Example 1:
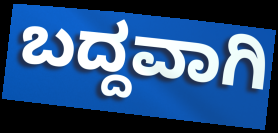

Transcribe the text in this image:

ಬದ್ದವಾಗಿ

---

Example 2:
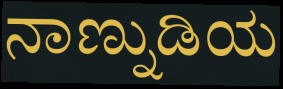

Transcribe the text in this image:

ನಾಣ್ನುಡಿಯ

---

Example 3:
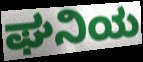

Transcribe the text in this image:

ಘನಿಯ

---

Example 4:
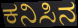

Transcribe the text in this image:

ಕನಿಸಿನ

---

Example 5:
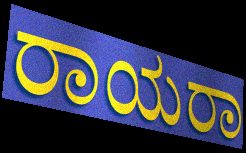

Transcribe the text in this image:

ರಾಯರಾ